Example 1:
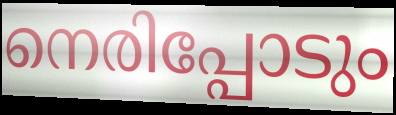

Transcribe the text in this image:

നെരിപ്പോടും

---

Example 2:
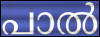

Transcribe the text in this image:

പാൽ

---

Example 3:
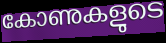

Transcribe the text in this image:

കോണുകളുടെ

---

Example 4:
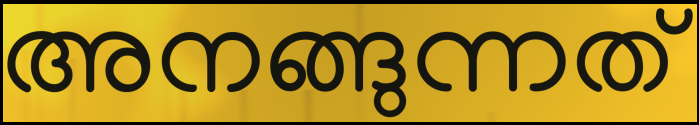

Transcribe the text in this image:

അനങ്ങുന്നത്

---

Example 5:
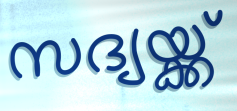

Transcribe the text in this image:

സദ്യയ്ക്ക്